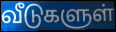
வீடுகளுள்